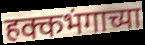
हक्कभंगाच्या